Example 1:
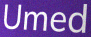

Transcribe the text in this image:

Umed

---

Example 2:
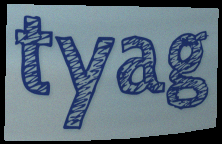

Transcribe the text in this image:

tyag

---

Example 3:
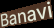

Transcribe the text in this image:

Banavi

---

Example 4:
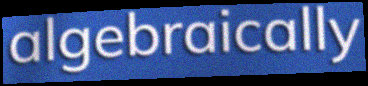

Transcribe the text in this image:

algebraically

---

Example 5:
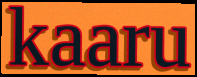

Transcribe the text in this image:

kaaru